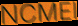
NCMEI